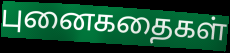
புனைகதைகள்